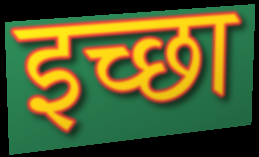
इच्छा